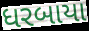
ધરબાયા